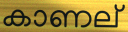
കാണല്